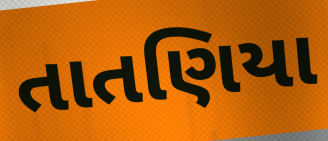
તાતણિયા